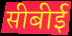
सीबीई